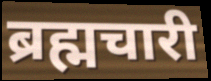
ब्रह्मचारी